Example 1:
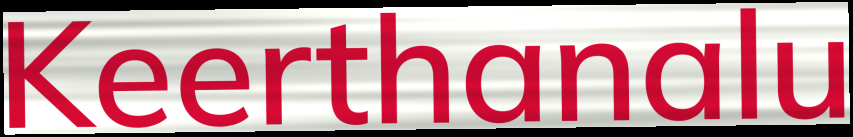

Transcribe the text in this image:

Keerthanalu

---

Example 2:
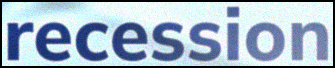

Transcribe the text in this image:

recession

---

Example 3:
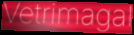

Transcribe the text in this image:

Vetrimagal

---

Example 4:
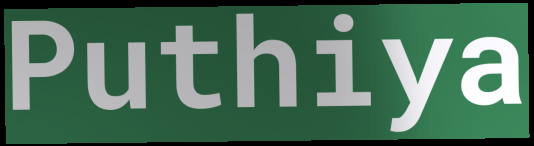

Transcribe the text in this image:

Puthiya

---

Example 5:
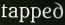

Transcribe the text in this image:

tapped